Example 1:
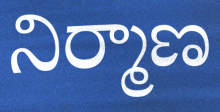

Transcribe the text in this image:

నిర్మాణ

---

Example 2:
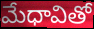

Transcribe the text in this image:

మేధావితో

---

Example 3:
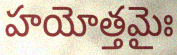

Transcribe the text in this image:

హయోత్తమైః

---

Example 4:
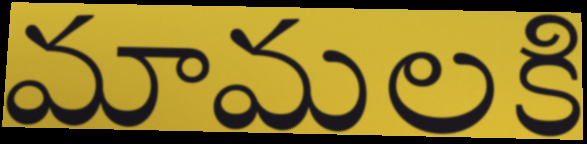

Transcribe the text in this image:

మామలకి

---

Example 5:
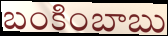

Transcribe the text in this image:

బంకింబాబు